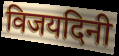
विजयदिनी